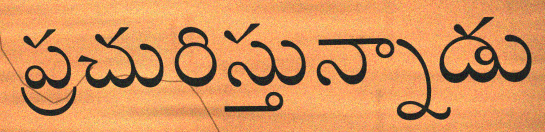
ప్రచురిస్తున్నాడు